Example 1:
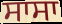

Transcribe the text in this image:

ਸਾਸਾ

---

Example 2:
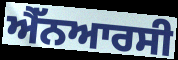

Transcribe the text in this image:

ਐੱਨਆਰਸੀ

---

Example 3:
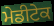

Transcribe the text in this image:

ਮੇਡੀਟੇਕ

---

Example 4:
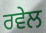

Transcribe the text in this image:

ਰਵੇਲ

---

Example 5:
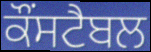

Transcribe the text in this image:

ਕੌਂਸਟੈਬਲ